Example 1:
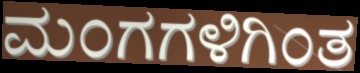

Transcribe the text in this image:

ಮಂಗಗಳಿಗಿಂತ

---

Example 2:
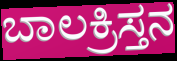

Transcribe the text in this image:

ಬಾಲಕ್ರಿಸ್ತನ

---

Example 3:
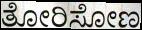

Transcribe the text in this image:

ತೋರಿಸೋಣ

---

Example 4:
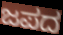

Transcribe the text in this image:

ಜಪದ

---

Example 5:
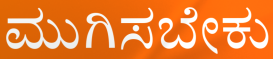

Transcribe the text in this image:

ಮುಗಿಸಬೇಕು